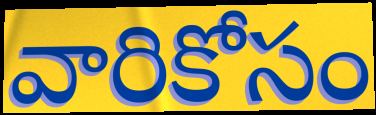
వారికోసం